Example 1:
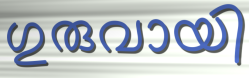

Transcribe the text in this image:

ഗുരുവായി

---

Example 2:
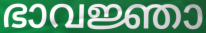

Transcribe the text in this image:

ഭാവജ്ഞാ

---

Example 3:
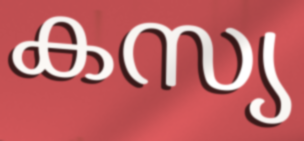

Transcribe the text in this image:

കസ്യ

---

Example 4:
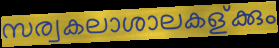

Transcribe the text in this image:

സര്വകലാശാലകള്ക്കും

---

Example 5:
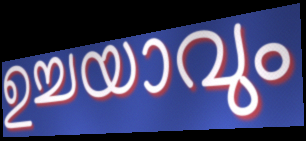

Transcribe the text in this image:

ഉച്ചയാവും